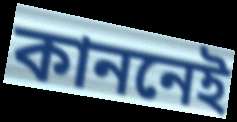
কাননেই